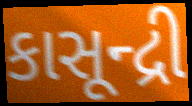
કાસૂન્દ્રી